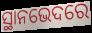
ସ୍ଥାନଭେଦରେ